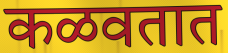
कळवतात